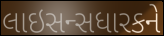
લાઇસન્સધારકને